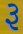
રૂ